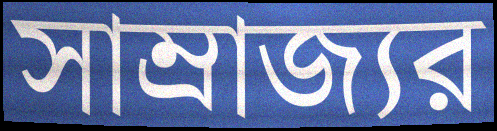
সাম্রাজ্যর